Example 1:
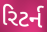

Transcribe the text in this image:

રિટર્ન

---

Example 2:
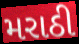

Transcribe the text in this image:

મરાઠી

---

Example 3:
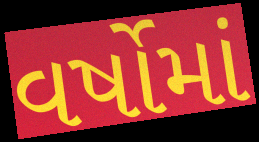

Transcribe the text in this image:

વર્ષોમાં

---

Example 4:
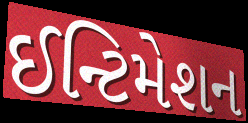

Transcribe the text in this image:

ઈન્ટિમેશન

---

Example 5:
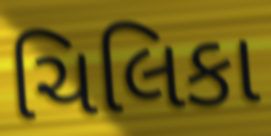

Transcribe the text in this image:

ચિલિકા